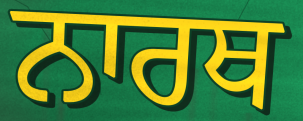
ਨਾਰਥ